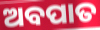
ଅବପାତ